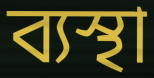
ব্যস্থা